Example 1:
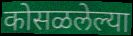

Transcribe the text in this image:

कोसळलेल्या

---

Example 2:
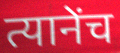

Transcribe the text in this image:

त्यानेंच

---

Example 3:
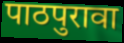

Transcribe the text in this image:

पाठपुरावा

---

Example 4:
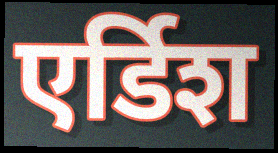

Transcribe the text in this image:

एर्डिश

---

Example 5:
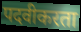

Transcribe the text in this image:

पदवीकरता